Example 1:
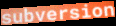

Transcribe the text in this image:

subversion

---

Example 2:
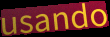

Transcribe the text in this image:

usando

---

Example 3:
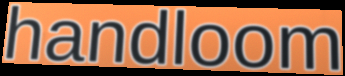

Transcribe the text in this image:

handloom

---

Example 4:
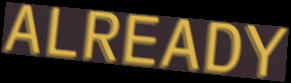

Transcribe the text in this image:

ALREADY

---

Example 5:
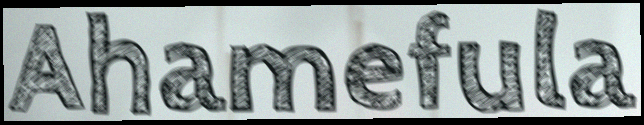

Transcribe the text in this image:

Ahamefula